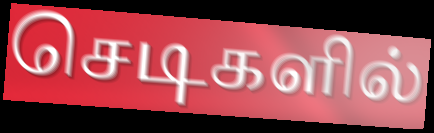
செடிகளில்